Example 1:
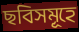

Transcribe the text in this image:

ছবিসমূহে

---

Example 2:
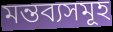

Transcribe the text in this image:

মন্তব্যসমূহ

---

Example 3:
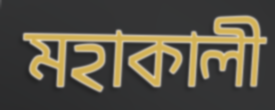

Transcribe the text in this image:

মহাকালী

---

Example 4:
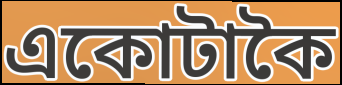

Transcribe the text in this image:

একোটাকৈ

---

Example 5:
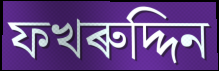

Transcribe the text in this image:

ফখৰুদ্দিন